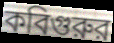
কবিগুরুর